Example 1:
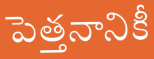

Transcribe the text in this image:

పెత్తనానికీ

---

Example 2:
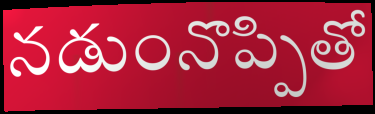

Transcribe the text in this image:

నడుంనొప్పితో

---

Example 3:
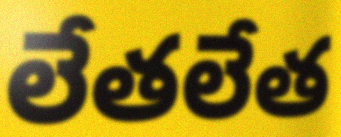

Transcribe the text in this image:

లేతలేత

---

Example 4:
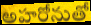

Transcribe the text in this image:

అహరోనుతో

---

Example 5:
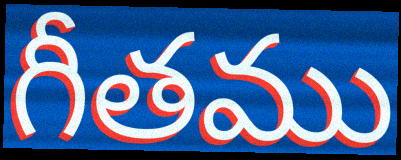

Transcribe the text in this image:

గీతము